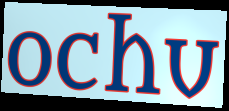
ochu